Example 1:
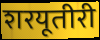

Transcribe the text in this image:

शरयूतीरी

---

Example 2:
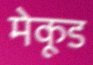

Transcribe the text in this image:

मेकूड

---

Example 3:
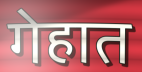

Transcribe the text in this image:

गेहात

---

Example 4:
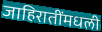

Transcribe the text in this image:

जाहिरातींमधली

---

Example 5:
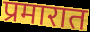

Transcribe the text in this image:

प्रमारात